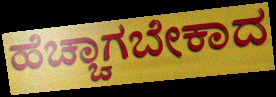
ಹೆಚ್ಚಾಗಬೇಕಾದ